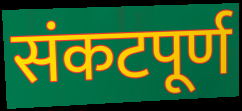
संकटपूर्ण